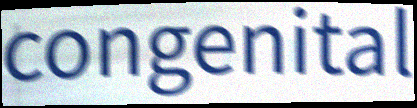
congenital